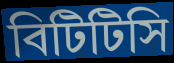
বিটিটিসি